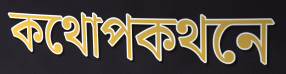
কথোপকথনে